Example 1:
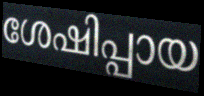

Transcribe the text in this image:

ശേഷിപ്പായ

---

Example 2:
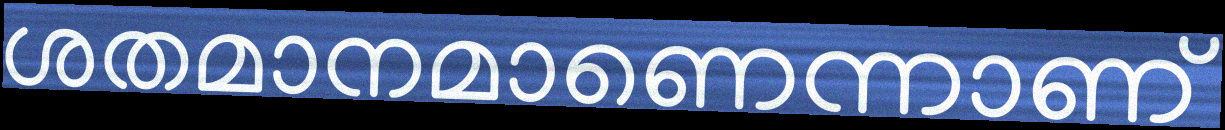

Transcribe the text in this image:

ശതമാനമാണെന്നാണ്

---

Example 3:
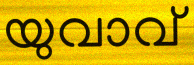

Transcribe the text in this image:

യുവാവ്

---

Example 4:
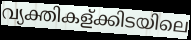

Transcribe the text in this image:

വ്യക്തികള്ക്കിടയിലെ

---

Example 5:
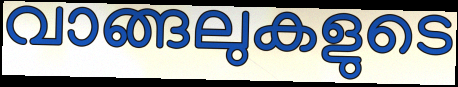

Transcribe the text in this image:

വാങ്ങലുകളുടെ